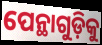
ପେନ୍ଥାଗୁଡ଼ିକୁ